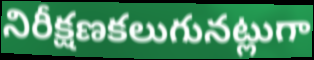
నిరీక్షణకలుగునట్లుగా